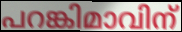
പറങ്കിമാവിന്